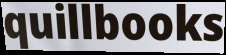
quillbooks